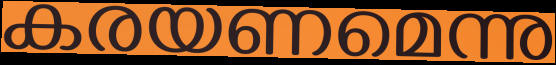
കരയണമെന്നു